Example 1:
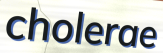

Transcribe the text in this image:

cholerae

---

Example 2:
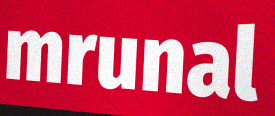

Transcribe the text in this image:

mrunal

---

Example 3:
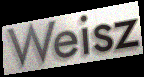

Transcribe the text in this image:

Weisz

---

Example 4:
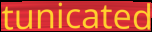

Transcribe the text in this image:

tunicated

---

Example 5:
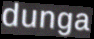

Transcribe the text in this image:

dunga